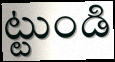
ట్టుండి